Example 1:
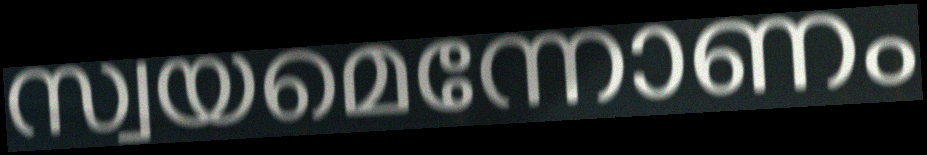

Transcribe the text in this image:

സ്വയമെന്നോണം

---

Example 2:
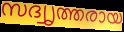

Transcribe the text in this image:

സദ്വൃത്തരായ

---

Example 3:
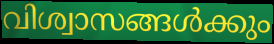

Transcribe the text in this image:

വിശ്വാസങ്ങൾക്കും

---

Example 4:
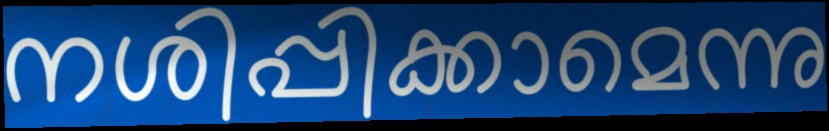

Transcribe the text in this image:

നശിപ്പിക്കാമെന്നു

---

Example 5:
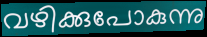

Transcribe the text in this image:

വഴിക്കുപോകുന്നു